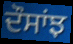
ਦੌਸਾਂਝ